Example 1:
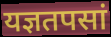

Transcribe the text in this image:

यज्ञतपसां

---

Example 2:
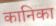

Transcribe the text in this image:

कानिका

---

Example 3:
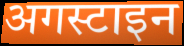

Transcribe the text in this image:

अगस्टाइन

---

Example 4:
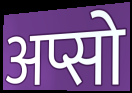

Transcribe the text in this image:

अप्सो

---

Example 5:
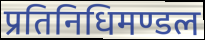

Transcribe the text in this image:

प्रतिनिधिमण्डल